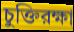
চুক্তিরক্ষা